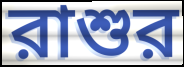
রাশুর